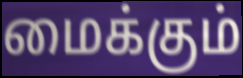
மைக்கும்